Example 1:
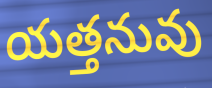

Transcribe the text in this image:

యత్తనువు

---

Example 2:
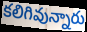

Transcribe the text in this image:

కలిగివున్నారు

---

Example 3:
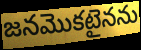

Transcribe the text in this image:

జనమొకటైనను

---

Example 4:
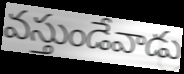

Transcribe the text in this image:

వస్తుండేవాడు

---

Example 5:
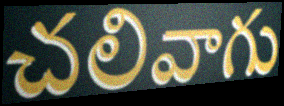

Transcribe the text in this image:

చలివాగు